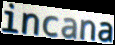
incana